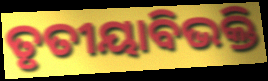
ତୃତୀୟାବିଭକ୍ତି